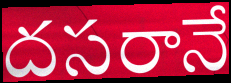
దసరానే